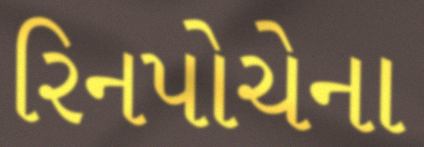
રિનપોચેના